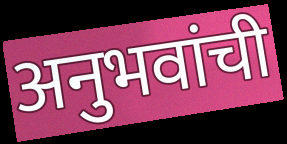
अनुभवांची